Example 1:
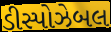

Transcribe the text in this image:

ડીસ્પોઝેબલ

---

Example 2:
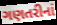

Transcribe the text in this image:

ગણતરીનાં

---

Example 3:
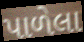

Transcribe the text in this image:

પાળેલા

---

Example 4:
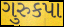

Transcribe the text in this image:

ગુરુકપા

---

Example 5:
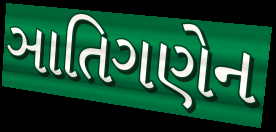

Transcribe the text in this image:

ઞાતિગણેન